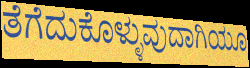
ತೆಗೆದುಕೊಳ್ಳುವುದಾಗಿಯೂ